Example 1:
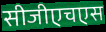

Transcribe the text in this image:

सीजीएचएस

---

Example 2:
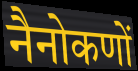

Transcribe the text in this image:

नैनोकणों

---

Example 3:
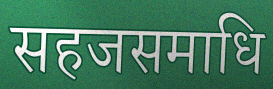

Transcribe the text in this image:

सहजसमाधि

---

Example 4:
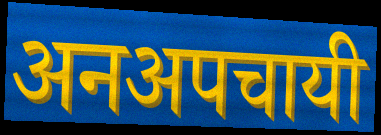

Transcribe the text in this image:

अनअपचायी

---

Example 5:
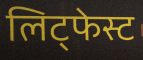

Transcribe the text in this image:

लिट्फेस्ट